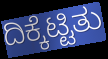
ದಿಕ್ಕೆಟ್ಟಿತು